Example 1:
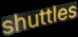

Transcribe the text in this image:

shuttles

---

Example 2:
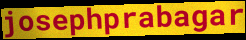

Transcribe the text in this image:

josephprabagar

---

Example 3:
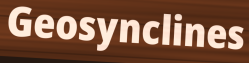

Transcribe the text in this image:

Geosynclines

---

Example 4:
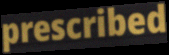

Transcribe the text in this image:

prescribed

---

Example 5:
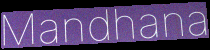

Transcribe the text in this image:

Mandhana